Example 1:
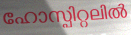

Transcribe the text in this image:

ഹോസ്പിറ്റലിൽ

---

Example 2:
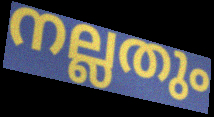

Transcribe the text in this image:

നല്ലതും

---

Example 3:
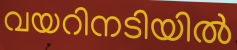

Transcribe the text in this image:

വയറിനടിയിൽ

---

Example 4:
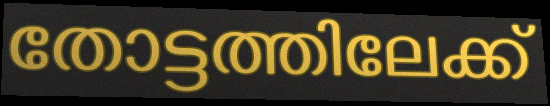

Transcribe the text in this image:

തോട്ടത്തിലേക്ക്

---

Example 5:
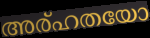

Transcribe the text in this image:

അര്ഹതയോ